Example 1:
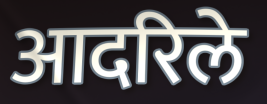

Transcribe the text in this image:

आदरिले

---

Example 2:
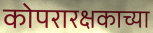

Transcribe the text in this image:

कोपरारक्षकाच्या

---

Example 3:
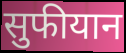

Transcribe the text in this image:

सुफीयान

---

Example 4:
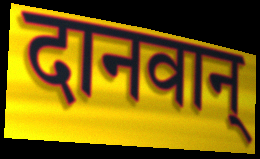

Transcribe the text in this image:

दानवान्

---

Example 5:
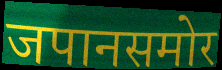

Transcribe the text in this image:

जपानसमोर